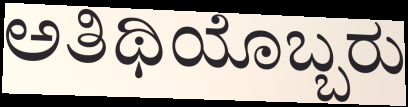
ಅತಿಥಿಯೊಬ್ಬರು